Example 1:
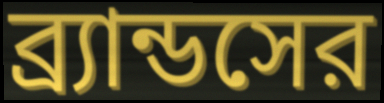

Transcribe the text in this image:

ব্র্যান্ডসের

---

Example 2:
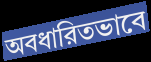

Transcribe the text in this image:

অবধারিতভাবে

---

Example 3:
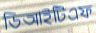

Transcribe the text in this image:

ডিআইটিএফ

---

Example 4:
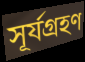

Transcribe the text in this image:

সূর্যগ্রহণ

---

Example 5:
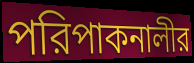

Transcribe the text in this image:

পরিপাকনালীর